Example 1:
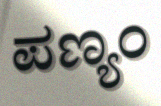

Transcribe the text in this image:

ಪಣ್ಯಂ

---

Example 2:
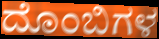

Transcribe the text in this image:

ದೊಂಬಿಗಳ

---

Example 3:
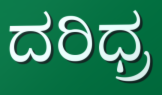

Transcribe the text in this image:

ದರಿಧ್ರ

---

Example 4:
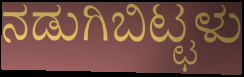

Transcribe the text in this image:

ನಡುಗಿಬಿಟ್ಟಳು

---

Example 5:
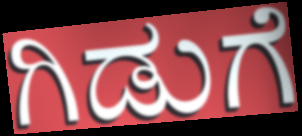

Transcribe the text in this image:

ಗಿಡುಗೆ